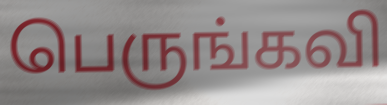
பெருங்கவி